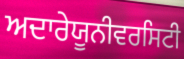
ਅਦਾਰੇਯੂਨੀਵਰਸਿਟੀ